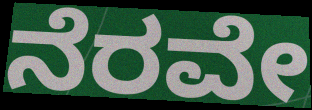
ನೆರವೇ